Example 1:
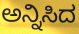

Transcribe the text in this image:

ಅನ್ನಿಸಿದ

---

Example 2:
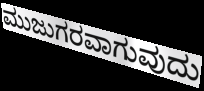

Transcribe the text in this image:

ಮುಜುಗರವಾಗುವುದು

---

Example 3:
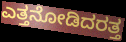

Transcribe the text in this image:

ಎತ್ತನೋಡಿದರತ್ತ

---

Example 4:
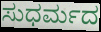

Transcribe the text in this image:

ಸುಧರ್ಮದ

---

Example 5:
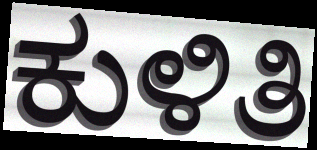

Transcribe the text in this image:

ಕುಳಿತಿ